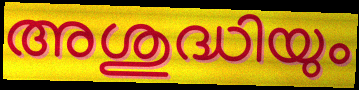
അശുദ്ധിയും